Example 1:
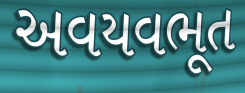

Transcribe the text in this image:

અવયવભૂત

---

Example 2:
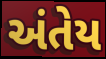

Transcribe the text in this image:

અંતેય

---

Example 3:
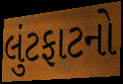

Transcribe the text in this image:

લુંટફાટનો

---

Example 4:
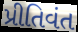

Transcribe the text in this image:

પ્રીતિવંત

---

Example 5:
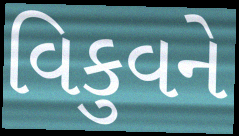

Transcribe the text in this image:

વિકુવને